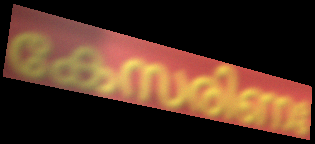
കേസരിണഃ